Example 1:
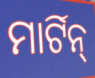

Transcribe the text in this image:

ମାର୍ଟିନ୍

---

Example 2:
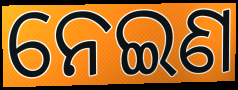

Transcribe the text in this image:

ନେଇଣ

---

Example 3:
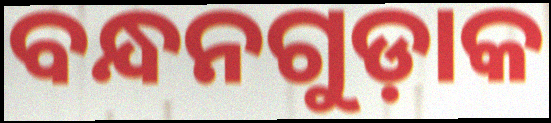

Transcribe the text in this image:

ବନ୍ଧନଗୁଡ଼ାକ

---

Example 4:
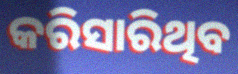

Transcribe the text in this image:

କରିସାରିଥିବ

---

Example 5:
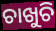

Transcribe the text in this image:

ଚାଖୁଚି